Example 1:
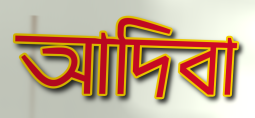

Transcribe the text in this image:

আদিবা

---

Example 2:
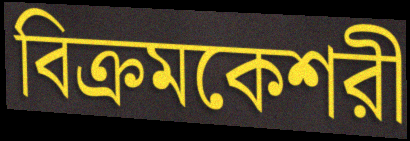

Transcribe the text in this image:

বিক্রমকেশরী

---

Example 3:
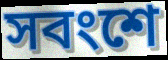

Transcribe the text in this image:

সবংশে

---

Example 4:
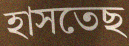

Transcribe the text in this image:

হাসতেছ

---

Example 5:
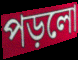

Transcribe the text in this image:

পড়লো